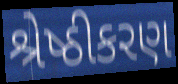
શ્રેષ્ઠીકરણ